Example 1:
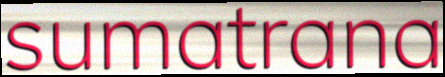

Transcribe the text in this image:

sumatrana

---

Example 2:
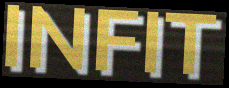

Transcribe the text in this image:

INFIT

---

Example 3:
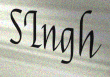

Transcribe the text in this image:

SIngh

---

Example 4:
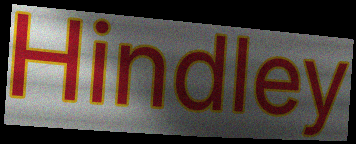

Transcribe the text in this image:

Hindley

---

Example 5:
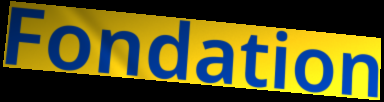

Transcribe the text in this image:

Fondation